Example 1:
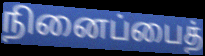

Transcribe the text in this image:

நினைப்பைத்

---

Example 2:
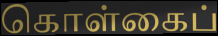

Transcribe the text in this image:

கொள்கைப்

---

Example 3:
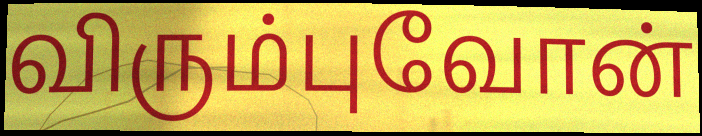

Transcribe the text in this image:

விரும்புவோன்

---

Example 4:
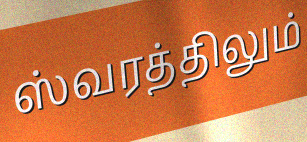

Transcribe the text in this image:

ஸ்வரத்திலும்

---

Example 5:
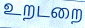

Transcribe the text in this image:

உறடறை